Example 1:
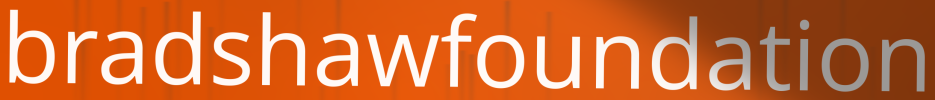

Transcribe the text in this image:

bradshawfoundation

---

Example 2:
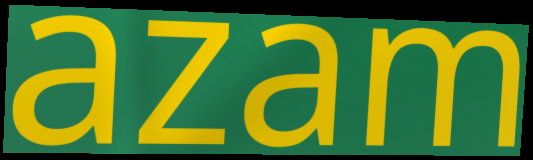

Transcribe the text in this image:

azam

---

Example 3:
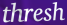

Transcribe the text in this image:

thresh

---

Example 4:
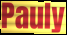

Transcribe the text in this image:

Pauly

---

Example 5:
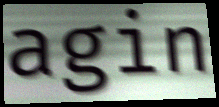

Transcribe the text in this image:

agin